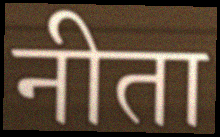
नीता